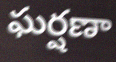
ఘర్షణా